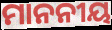
ମାନନୀୟ